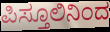
ಪಿಸ್ತೂಲಿನಿಂದ